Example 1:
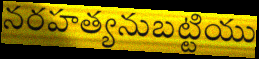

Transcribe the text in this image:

నరహత్యనుబట్టియు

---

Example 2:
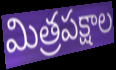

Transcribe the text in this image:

మిత్రపక్షాల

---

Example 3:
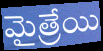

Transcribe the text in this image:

మైత్రేయి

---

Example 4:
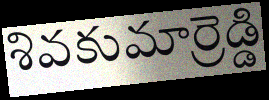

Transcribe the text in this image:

శివకుమార్రెడ్డి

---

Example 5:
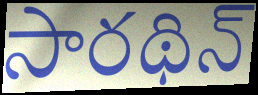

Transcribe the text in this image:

సారథిన్